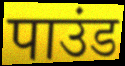
पाउंड